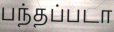
பந்தப்படா